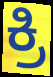
ಕ್ರಿ